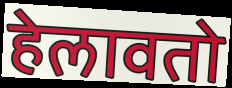
हेलावतो